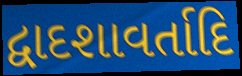
દ્વાદશાવર્તાદિ